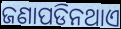
ଜଣାପଡିନଥାଏ